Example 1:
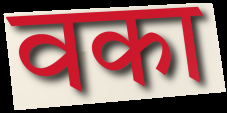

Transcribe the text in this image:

वका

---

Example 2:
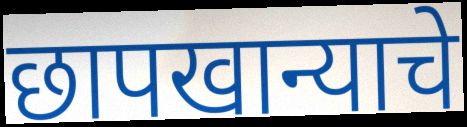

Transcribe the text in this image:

छापखान्याचे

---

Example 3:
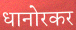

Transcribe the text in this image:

धानोरकर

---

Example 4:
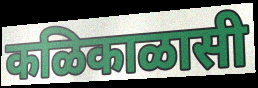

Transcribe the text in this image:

कळिकाळासी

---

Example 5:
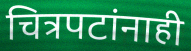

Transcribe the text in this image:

चित्रपटांनाही